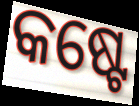
କଷ୍ଟେ